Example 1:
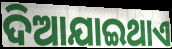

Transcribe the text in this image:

ଦିଆଯାଇଥାଏ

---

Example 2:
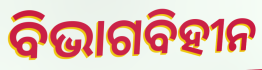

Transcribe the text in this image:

ବିଭାଗବିହୀନ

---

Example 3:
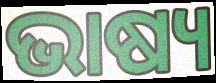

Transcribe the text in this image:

ଭାଷ୍ୟ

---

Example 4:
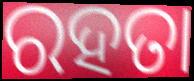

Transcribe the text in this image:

ରହତା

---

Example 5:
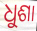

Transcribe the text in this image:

ଧୁଶା